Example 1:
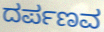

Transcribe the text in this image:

ದರ್ಪಣವ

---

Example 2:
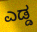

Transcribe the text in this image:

ಎಡ್ಡ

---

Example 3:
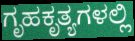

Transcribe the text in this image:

ಗೃಹಕೃತ್ಯಗಳಲ್ಲಿ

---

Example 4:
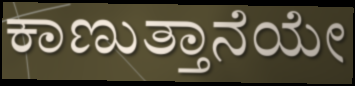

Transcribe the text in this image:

ಕಾಣುತ್ತಾನೆಯೇ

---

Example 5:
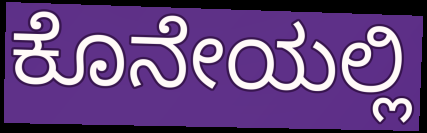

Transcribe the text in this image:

ಕೊನೇಯಲ್ಲಿ